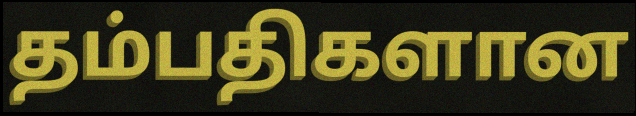
தம்பதிகளான